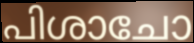
പിശാചോ